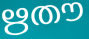
ഋതൗ